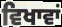
ਵਿਖਾਵਾਂ